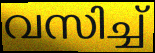
വസിച്ച്